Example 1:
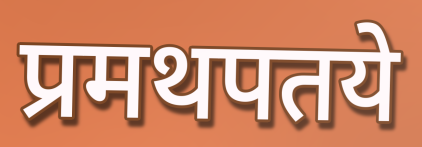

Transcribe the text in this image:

प्रमथपतये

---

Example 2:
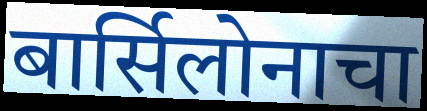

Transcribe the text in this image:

बार्सिलोनाचा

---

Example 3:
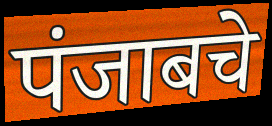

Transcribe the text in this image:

पंजाबचे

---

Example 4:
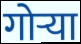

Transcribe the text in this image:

गोऱ्या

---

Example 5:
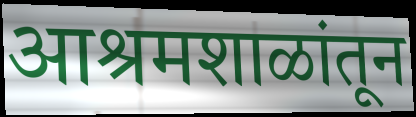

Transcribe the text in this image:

आश्रमशाळांतून